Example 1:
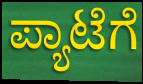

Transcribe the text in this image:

ಪ್ಯಾಟೆಗೆ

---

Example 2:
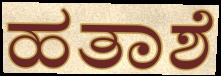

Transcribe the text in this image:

ಹತಾಶೆ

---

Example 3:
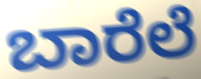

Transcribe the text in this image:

ಬಾರೆಲೆ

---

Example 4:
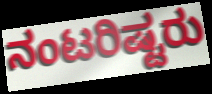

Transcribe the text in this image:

ನಂಟರಿಷ್ಟರು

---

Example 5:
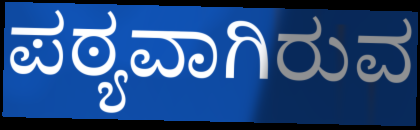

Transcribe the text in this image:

ಪಠ್ಯವಾಗಿರುವ